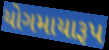
યોગમાયારૂપ